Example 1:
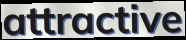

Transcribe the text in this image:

attractive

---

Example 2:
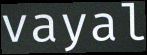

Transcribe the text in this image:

vayal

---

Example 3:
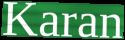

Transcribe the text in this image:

Karan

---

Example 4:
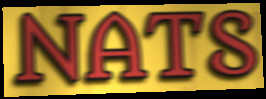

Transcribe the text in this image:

NATS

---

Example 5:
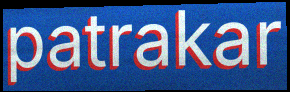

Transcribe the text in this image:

patrakar